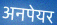
अनपेयर